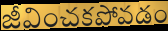
జీవించకపోవడం